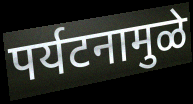
पर्यटनामुळे